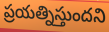
ప్రయత్నిస్తుందని